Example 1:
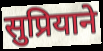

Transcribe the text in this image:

सुप्रियाने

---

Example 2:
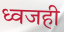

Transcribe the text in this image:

ध्वजही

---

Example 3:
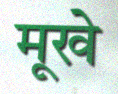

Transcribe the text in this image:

मूखे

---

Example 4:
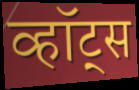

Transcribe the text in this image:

व्हॉट्‌स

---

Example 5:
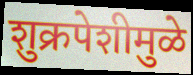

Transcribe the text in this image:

शुक्रपेशीमुळे